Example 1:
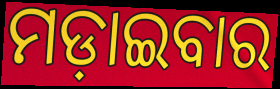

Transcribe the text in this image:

ମଡ଼ାଇବାର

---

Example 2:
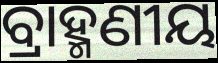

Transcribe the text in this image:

ବ୍ରାହ୍ମଣୀୟ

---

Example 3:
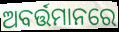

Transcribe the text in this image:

ଅବର୍ତ୍ତମାନରେ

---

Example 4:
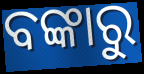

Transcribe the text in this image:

ବଙ୍କାରୁ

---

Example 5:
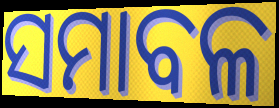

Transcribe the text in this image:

ସମାବଳ